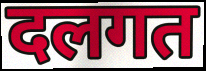
दलगत